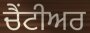
ਚੈਂਟੀਅਰ